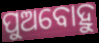
ପୁଅବୋହୁ